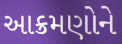
આક્રમણોને